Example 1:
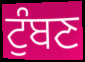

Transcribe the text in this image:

ਟੁੰਬਣ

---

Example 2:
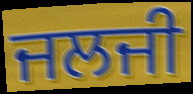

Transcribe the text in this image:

ਜਲਜੀ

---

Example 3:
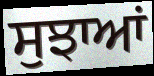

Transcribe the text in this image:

ਸੁਝਾਆਂ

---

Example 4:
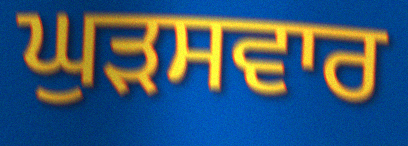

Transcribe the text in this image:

ਘੁੜਸਵਾਰ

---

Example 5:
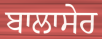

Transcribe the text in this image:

ਬਾਲਾਸੇਰ